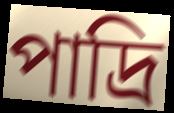
পাদ্রি